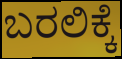
ಬರಲಿಕ್ಕೆ